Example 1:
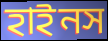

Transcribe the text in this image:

হাইনস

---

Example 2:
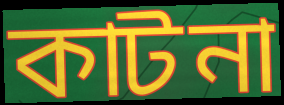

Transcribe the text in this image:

কাটনা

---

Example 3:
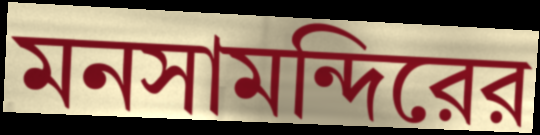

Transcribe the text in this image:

মনসামন্দিরের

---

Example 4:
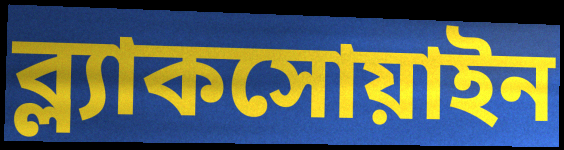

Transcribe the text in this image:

ব্ল্যাকসোয়াইন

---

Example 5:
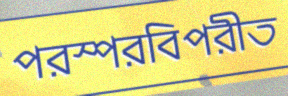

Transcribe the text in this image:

পরস্পরবিপরীত